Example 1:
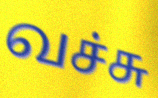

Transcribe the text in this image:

வச்சு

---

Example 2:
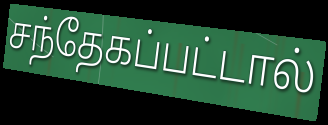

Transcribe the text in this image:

சந்தேகப்பட்டால்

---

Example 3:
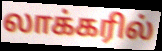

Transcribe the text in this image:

லாக்கரில்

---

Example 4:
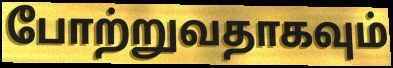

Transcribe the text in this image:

போற்றுவதாகவும்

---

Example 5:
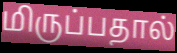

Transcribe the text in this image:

மிருப்பதால்